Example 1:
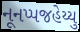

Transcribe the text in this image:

નૂનપ્પજહેય્યુ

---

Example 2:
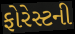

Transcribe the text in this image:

ફોરેસ્ટની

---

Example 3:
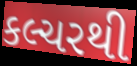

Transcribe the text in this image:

કલ્ચરથી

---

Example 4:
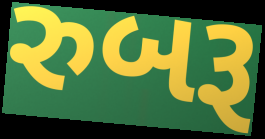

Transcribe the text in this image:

રુબરૂ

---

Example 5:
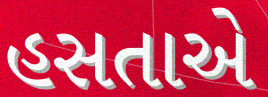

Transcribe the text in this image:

હસતાએ